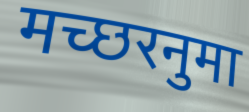
मच्छरनुमा